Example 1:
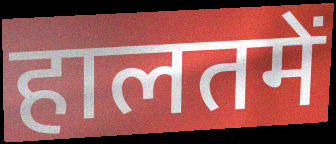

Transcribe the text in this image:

हालतमें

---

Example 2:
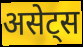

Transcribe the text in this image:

असेट्स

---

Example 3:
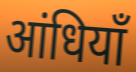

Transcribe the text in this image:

आंधियाँ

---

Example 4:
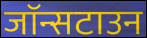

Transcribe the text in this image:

जॉन्सटाउन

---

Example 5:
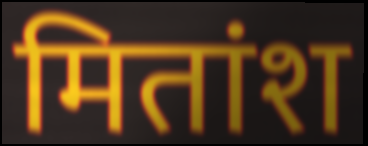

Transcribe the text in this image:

मितांश